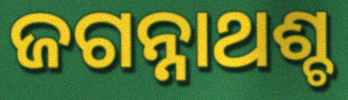
ଜଗନ୍ନାଥଶ୍ଚ